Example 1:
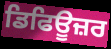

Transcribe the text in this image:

ਡਿਫਿਊਜ਼ਰ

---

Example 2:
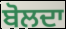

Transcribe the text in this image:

ਬੋਲਦਾ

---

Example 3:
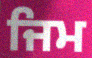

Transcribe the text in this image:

ਜਿਮ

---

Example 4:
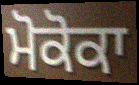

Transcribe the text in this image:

ਮੋਕੋਕਾ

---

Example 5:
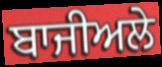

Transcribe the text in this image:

ਬਾਜੀਅਲੇ